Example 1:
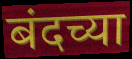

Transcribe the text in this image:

बंदच्या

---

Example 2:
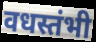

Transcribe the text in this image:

वधस्तंभी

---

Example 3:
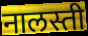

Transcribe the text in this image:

नालस्ती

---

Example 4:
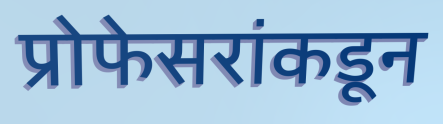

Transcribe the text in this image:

प्रोफेसरांकडून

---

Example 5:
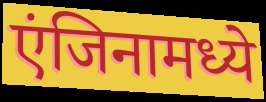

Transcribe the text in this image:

एंजिनामध्ये